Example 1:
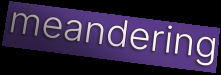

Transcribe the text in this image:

meandering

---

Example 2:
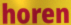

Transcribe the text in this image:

horen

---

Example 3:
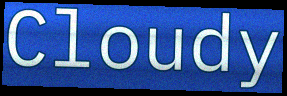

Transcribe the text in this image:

Cloudy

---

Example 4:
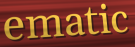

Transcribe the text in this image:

ematic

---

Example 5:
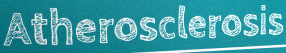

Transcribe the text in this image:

Atherosclerosis